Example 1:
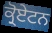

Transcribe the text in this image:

ਕ੍ਰੋਏਟਨ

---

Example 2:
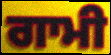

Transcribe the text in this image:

ਗਾਮੀ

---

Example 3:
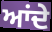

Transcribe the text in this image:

ਆਂਦੇ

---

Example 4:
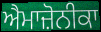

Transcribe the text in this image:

ਐਮਾਜ਼ੋਨੀਕਾ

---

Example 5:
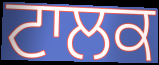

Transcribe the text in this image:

ਟਾਲਕ